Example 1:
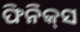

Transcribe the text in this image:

ଫିନିକ୍‌ସ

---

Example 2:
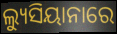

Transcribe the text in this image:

ଲ୍ୟୁସିୟାନାରେ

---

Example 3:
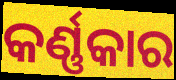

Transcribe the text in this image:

କର୍ଣ୍ଣକାର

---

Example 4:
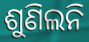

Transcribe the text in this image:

ଶୁଣିଲନି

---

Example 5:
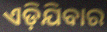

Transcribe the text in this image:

ଏଡ଼ିଯିବାର